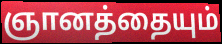
ஞானத்தையும்